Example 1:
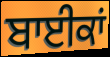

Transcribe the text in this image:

ਬਾਈਕਾਂ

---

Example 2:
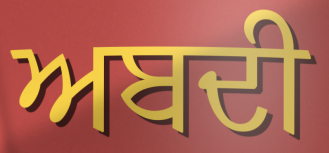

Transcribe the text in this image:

ਅਬਦੀ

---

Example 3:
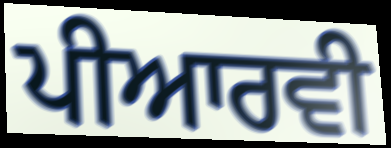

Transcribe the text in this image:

ਪੀਆਰਵੀ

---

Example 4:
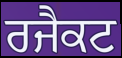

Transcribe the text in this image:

ਰਜੈਕਟ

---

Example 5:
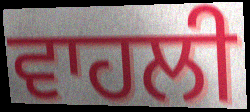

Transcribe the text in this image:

ਵਾਹਲੀ